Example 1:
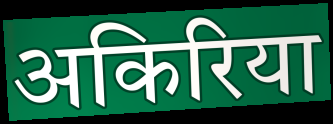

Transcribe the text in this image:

अकिरिया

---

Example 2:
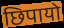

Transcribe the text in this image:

छिपायो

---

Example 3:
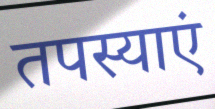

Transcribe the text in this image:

तपस्याएं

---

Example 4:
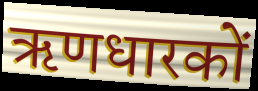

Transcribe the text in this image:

ऋणधारकों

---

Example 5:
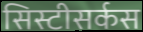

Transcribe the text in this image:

सिस्टीसर्कस